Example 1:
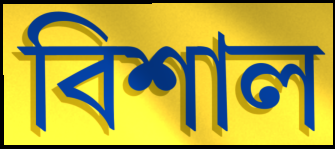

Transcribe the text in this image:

বিশাল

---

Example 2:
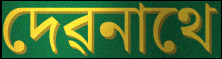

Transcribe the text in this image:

দেৱনাথে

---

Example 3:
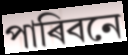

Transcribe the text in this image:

পাৰিবনে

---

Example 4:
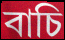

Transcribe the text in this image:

বাচি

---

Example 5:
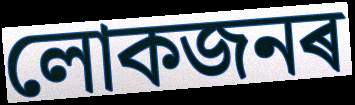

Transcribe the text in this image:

লোকজনৰ